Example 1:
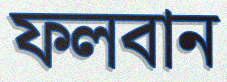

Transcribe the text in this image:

ফলবান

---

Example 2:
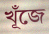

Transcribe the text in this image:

খূঁজে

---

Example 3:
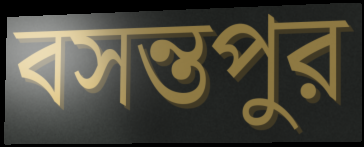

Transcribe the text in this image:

বসন্তপুর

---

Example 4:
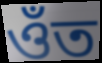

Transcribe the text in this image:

ওঁত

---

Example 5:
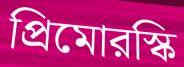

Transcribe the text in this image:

প্রিমোরস্কি